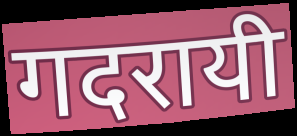
गदरायी